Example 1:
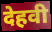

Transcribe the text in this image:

देहवी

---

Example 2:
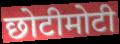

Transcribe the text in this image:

छोटीमोटी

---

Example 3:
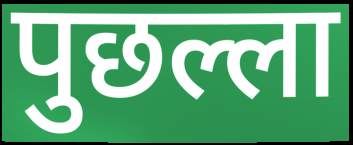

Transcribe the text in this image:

पुछल्ला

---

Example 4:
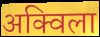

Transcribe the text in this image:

अक्विला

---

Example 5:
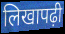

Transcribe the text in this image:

लिखापढ़ी